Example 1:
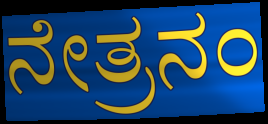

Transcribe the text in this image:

ನೇತ್ರನಂ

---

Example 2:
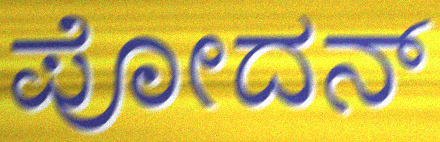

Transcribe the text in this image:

ಪೋದನ್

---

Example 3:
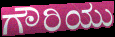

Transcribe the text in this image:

ಗೌರಿಯು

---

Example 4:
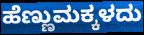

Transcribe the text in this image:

ಹೆಣ್ಣುಮಕ್ಕಳದು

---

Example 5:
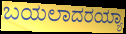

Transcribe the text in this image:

ಬಯಲಾದರಯ್ಯಾ